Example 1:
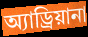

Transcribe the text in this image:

অ্যাড্রিয়ানা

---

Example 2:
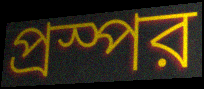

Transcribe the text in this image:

প্রস্পর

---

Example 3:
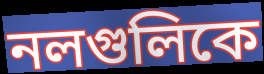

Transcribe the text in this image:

নলগুলিকে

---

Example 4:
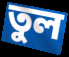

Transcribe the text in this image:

তুল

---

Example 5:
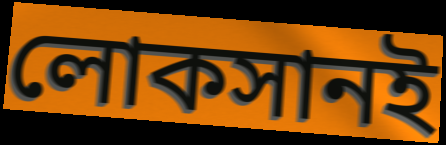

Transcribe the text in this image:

লোকসানই